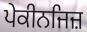
ਪੇਕੀਨਜਿਜ਼